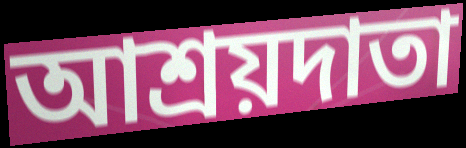
আশ্রয়দাতা